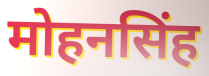
मोहनसिंह